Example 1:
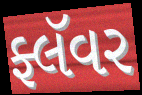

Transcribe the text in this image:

ફ્લૅવર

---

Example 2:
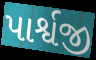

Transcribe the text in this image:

પાર્શ્વજી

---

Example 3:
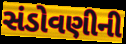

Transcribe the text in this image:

સંડોવણીની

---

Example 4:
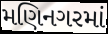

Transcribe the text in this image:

મણિનગરમાં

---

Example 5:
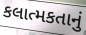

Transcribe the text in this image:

કલાત્મકતાનું